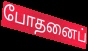
போதனைப்